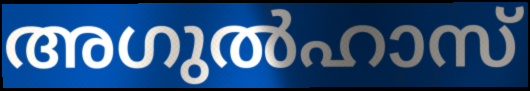
അഗുൽഹാസ്